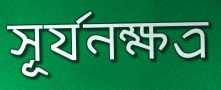
সূর্যনক্ষত্র